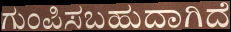
ಗುಂಪಿಸಬಹುದಾಗಿದೆ